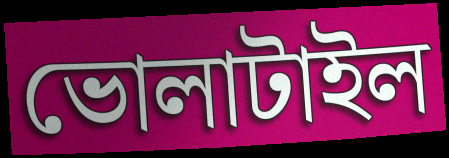
ভোলাটাইল